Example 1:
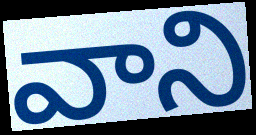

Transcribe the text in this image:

వాని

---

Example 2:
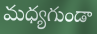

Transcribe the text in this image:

మధ్యగుండా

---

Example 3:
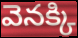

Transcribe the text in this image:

వెనక్కి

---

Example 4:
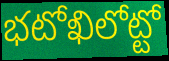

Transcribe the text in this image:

భటోఖిలోట్టో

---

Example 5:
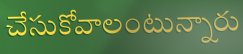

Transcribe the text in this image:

చేసుకోవాలంటున్నారు